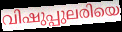
വിഷുപ്പുലരിയെ